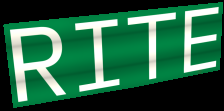
RITE